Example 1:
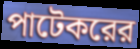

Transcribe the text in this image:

পাটেকরের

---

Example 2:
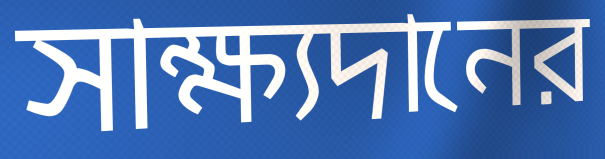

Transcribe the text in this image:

সাক্ষ্যদানের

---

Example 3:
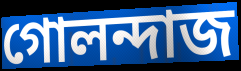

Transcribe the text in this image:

গোলন্দাজ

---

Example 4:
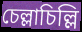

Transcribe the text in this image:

চেল্লাচিল্লি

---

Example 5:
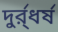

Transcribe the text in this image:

দুর্র্ধর্ষ